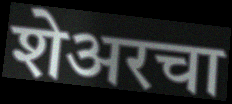
शेअरचा